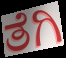
ತೆಗಿ